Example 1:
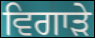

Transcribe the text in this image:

ਵਿਗਾੜੇ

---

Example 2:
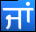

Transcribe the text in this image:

ਜਾਂ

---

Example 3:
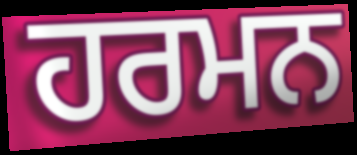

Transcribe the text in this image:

ਹਰਮਨ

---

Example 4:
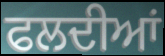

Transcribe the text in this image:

ਫਲਦੀਆਂ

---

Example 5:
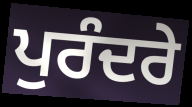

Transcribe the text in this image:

ਪੁਰੰਦਰੇ